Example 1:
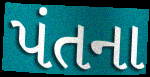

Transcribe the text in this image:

પંતના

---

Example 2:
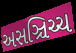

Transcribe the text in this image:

અસઞ્ચિચ્ચ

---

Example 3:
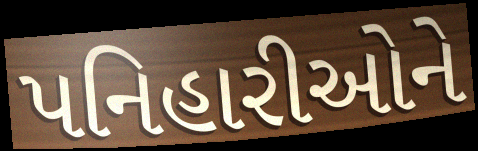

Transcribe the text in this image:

પનિહારીઓને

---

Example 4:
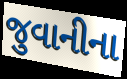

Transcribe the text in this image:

જુવાનીના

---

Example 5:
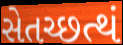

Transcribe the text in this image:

સેતચ્છત્થં